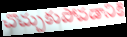
చొచ్చుకుపోవడానికి